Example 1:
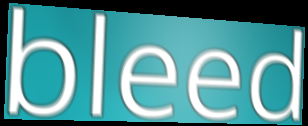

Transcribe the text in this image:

bleed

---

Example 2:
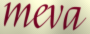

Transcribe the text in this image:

meva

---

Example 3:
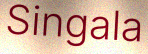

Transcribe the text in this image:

Singala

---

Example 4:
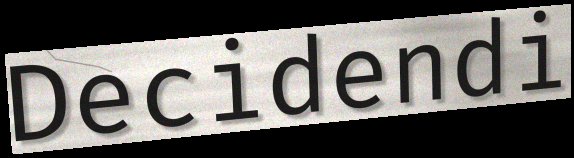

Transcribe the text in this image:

Decidendi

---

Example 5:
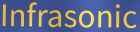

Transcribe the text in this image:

Infrasonic